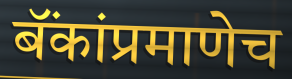
बॅंकांप्रमाणेच